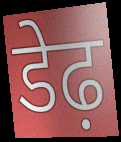
डेढ़